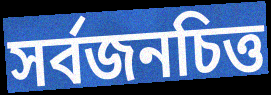
সর্বজনচিত্ত